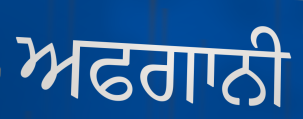
ਅਫਗਾਨੀ